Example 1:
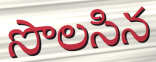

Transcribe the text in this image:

సొలసిన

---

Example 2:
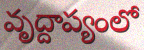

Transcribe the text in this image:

వృద్దాప్యంలో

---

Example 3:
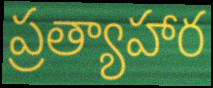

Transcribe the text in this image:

ప్రత్యాహార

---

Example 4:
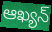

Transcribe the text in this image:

ఆఖ్యన్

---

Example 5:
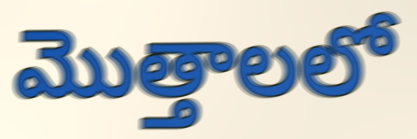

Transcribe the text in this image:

మొత్తాలలో